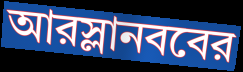
আরস্লানববের